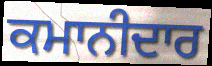
ਕਮਾਨੀਦਾਰ